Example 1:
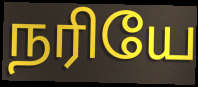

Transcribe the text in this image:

நரியே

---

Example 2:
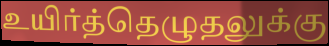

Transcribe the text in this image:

உயிர்த்தெழுதலுக்கு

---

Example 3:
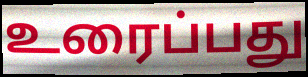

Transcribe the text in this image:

உரைப்பது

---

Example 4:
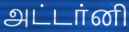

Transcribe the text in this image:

அட்டர்னி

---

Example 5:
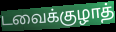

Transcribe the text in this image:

டவைக்குழாத்